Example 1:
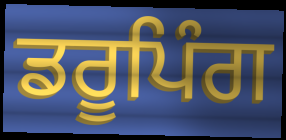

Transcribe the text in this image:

ਡਰੂਪਿੰਗ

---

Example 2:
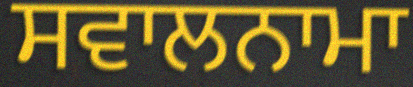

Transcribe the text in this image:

ਸਵਾਲਨਾਮਾ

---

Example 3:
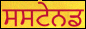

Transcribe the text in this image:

ਸਸਟੇਨਡ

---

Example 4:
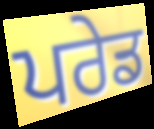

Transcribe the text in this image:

ਪਰੇਡ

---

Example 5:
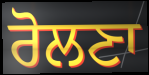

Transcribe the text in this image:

ਰੋਲਣਾ